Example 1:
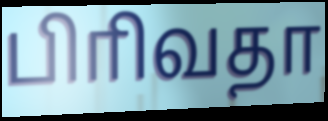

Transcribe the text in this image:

பிரிவதா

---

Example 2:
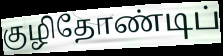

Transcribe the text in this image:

குழிதோண்டிப்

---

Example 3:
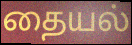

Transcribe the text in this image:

தையல்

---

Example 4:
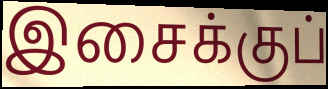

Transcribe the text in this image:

இசைக்குப்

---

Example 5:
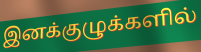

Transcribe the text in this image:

இனக்குழுக்களில்